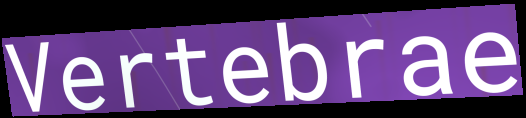
Vertebrae